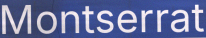
Montserrat